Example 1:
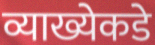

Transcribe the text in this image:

व्याख्येकडे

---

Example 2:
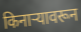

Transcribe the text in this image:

किनाऱ्यावरून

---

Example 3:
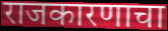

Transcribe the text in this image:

राजकारणाचा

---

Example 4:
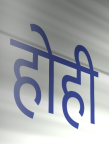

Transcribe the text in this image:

होही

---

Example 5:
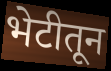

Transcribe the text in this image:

भेटीतून